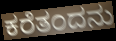
ಕರೆತಂದನು